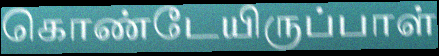
கொண்டேயிருப்பாள்